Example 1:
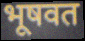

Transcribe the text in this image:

भूषवत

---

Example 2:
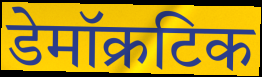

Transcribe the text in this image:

डेमॉक्रटिक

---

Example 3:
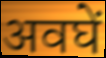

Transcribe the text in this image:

अवघें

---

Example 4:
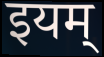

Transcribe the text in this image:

इयम्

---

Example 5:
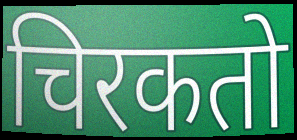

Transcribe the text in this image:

चिरकतो